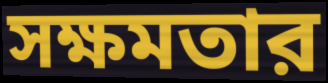
সক্ষমতার